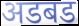
अडबड